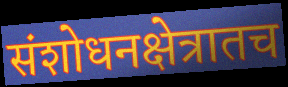
संशोधनक्षेत्रातच